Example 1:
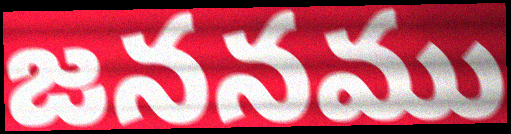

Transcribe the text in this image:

జననము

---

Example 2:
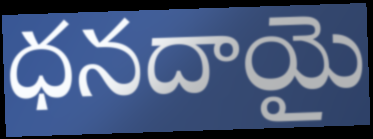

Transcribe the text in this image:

ధనదాయై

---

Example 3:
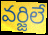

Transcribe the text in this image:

వర్జిలే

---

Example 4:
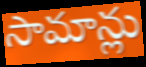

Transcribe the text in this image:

సామాన్లు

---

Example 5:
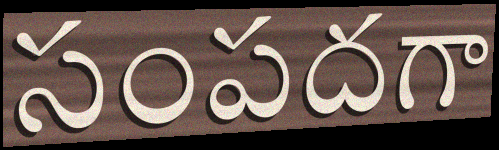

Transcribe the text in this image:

సంపదగా